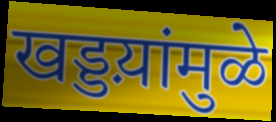
खड्डय़ांमुळे